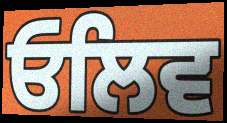
ਓਲਿਵ